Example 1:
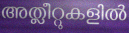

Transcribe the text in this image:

അത്ലീറ്റുകളിൽ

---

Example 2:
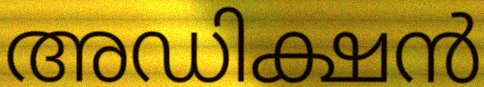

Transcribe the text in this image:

അഡിക്ഷൻ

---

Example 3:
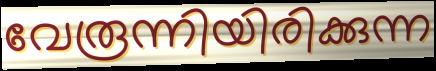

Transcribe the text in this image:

വേരൂന്നിയിരിക്കുന്ന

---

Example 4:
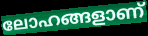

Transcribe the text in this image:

ലോഹങ്ങളാണ്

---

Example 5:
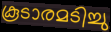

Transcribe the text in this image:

കൂടാരമടിച്ചു